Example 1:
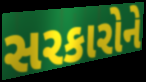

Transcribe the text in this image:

સરકારોને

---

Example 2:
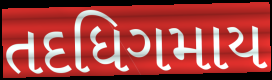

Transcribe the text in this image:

તદધિગમાય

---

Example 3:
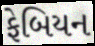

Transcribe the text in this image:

ફેબિયન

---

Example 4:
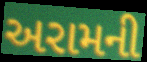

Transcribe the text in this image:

અરામની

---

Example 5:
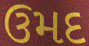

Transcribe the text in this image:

ઉમદ